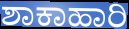
ಶಾಕಾಹಾರಿ